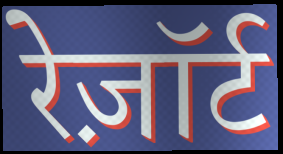
रेज़ॉर्ट